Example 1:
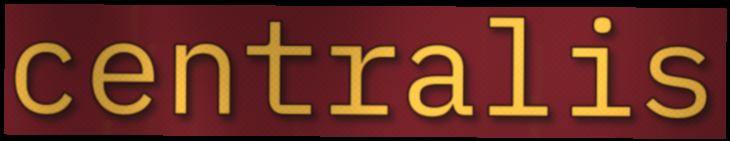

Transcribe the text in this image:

centralis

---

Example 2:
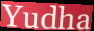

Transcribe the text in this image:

Yudha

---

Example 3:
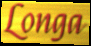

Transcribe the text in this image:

Longa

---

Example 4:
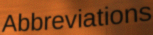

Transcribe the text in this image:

Abbreviations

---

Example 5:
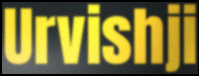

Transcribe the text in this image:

Urvishji